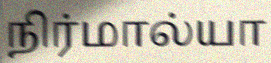
நிர்மால்யா